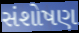
સંશોષણ